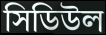
সিডিউল